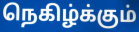
நெகிழ்க்கும்